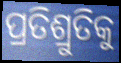
ପ୍ରତିଶ୍ରୁତିକୁ